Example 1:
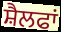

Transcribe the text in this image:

ਸ਼ੈਲਫਾਂ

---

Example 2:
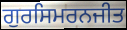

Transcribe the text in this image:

ਗੁਰਸਿਮਰਨਜੀਤ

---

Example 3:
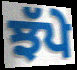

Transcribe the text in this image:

ਝੱਪੇ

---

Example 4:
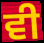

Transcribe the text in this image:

ਵੀ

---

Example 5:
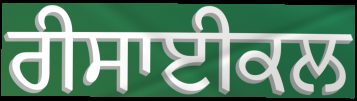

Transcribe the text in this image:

ਰੀਸਾਈਕਲ